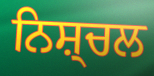
ਨਿਸ਼੍ਚਲ